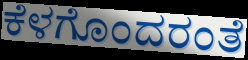
ಕೆಳಗೊಂದರಂತೆ